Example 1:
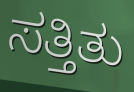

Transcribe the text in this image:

ಸತ್ತಿತು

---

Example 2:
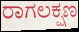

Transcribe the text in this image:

ರಾಗಲಕ್ಷಣ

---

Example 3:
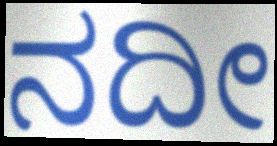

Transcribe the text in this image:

ನದೀ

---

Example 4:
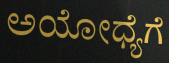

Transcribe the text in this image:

ಅಯೋಧ್ಯೆಗೆ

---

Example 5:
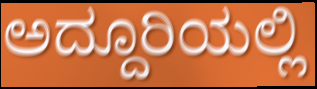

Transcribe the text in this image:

ಅದ್ದೂರಿಯಲ್ಲಿ